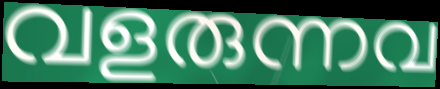
വളരുന്നവ